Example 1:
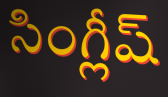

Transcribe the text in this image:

సింగ్లీష్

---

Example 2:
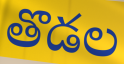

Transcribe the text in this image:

తొడల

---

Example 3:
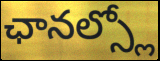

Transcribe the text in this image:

ఛానల్స్లో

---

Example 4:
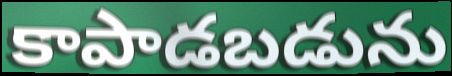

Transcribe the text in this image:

కాపాడబడును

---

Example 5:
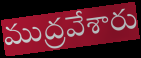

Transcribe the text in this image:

ముద్రవేశారు